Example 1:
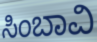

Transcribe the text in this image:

ಸಿಂಬಾವಿ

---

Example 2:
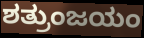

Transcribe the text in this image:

ಶತ್ರುಂಜಯಂ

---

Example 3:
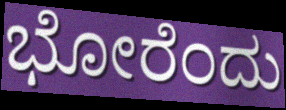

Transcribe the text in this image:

ಭೋರೆಂದು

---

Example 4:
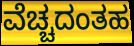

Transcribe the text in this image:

ವೆಚ್ಚದಂತಹ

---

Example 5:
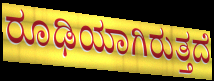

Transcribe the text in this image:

ರೂಢಿಯಾಗಿರುತ್ತದೆ